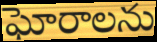
ఘోరాలను